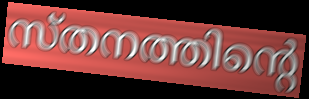
സ്തനത്തിന്റെ